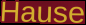
Hause